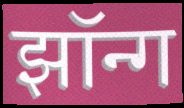
झॉन्ग